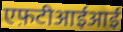
एफ़टीआईआई